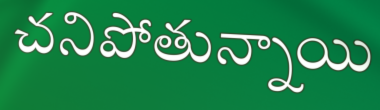
చనిపోతున్నాయి